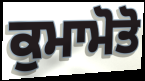
ਕੁਮਾਮੋਤੋ